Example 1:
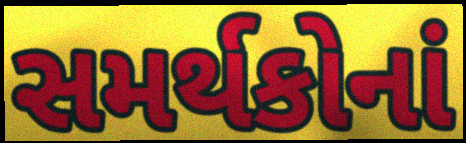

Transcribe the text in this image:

સમર્થકોનાં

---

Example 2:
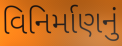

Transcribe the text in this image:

વિનિર્માણનું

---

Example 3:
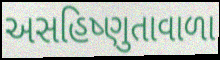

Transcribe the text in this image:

અસહિષ્ણુતાવાળા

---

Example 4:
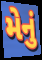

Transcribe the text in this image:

મેનું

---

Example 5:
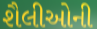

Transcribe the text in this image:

શૈલીઓની